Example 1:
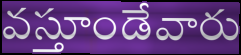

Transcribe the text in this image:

వస్తూండేవారు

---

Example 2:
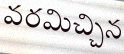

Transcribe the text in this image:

వరమిచ్చిన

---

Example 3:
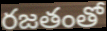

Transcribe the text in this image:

రజతంతో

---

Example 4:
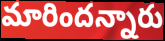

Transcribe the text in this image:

మారిందన్నారు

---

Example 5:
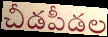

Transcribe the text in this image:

చీడపీడల